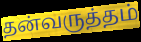
தன்வருத்தம்